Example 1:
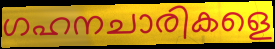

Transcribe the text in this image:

ഗഹനചാരികളെ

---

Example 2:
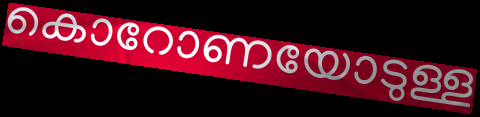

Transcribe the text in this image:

കൊറോണയോടുള്ള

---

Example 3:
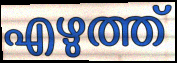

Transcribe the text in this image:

എഴുത്ത്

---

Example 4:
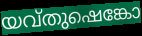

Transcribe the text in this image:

യവ്തുഷെങ്കോ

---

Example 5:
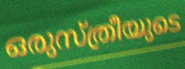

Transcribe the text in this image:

ഒരുസ്ത്രീയുടെ